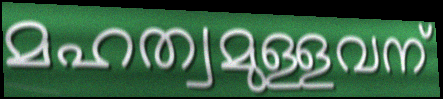
മഹത്വമുള്ളവന്